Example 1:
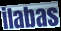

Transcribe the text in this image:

ilabas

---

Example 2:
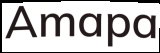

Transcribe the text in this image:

Amapa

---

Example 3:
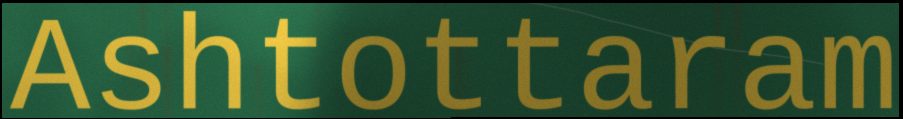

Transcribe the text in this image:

Ashtottaram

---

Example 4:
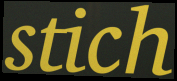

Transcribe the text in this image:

stich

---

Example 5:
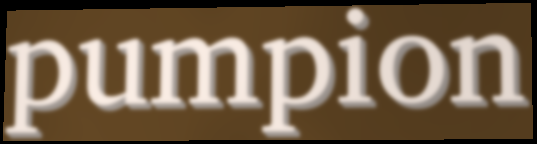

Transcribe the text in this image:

pumpion